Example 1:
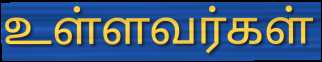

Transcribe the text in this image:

உள்ளவர்கள்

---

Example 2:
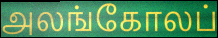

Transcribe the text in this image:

அலங்கோலப்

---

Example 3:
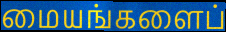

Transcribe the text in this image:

மையங்களைப்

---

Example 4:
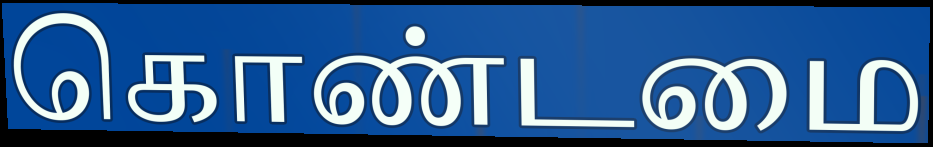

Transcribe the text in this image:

கொண்டமை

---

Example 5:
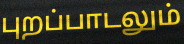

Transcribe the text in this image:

புறப்பாடலும்